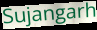
Sujangarh